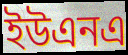
ইউএনএ